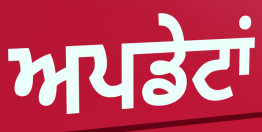
ਅਪਡੇਟਾਂ